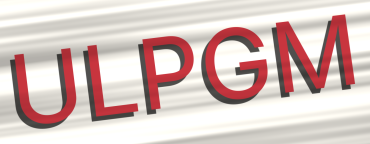
ULPGM